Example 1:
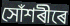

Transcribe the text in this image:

সোঁশৰীৰে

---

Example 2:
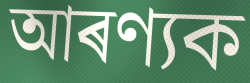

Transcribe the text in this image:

আৰণ্যক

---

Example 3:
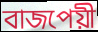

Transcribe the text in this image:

বাজপেয়ী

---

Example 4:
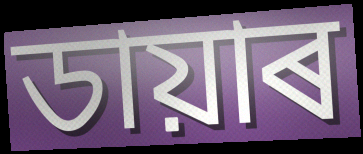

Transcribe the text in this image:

ডায়াৰ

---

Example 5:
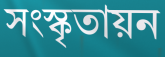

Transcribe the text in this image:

সংস্কৃতায়ন